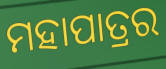
ମହାପାତ୍ରର